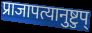
प्राजापत्यानुष्टुप्